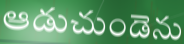
ఆడుచుండెను